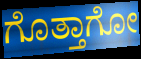
ಗೊತ್ತಾಗೋ